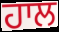
ਹਾਲ